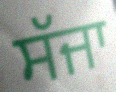
ਸੱਜਾ